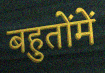
बहुतोंमें